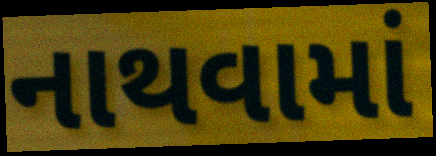
નાથવામાં